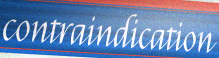
contraindication